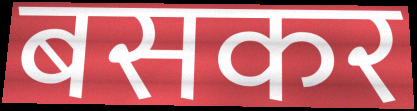
बसकर